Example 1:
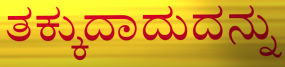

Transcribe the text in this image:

ತಕ್ಕುದಾದುದನ್ನು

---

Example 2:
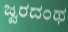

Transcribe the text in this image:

ಜ್ವರದಂಥ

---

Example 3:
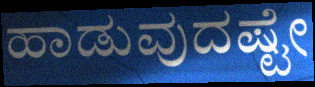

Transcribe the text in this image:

ಹಾಡುವುದಷ್ಟೇ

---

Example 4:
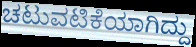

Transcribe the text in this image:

ಚಟುವಟಿಕೆಯಾಗಿದ್ದು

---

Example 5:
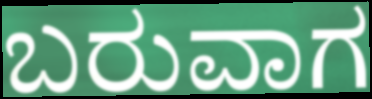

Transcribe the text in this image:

ಬರುವಾಗ